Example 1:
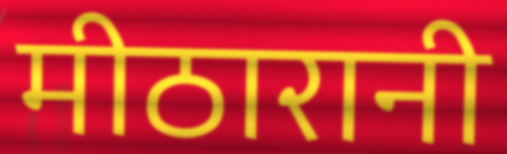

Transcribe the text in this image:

मीठारानी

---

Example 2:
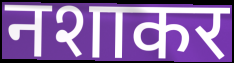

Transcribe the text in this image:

नशाकर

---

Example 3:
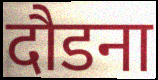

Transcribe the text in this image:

दौडना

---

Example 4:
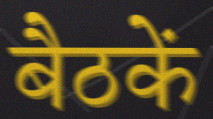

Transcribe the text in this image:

बैठकें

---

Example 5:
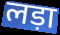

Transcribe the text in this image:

लड़ा